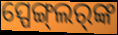
ସ୍ପେଙ୍ଗ୍‌ଲର୍‌ଙ୍କ